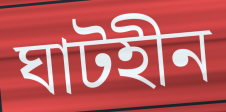
ঘাটহীন